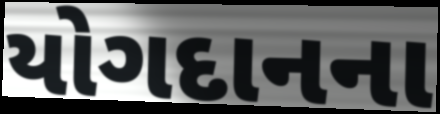
યોગદાનના